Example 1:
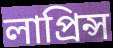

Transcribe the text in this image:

লাপ্রিন্স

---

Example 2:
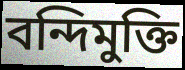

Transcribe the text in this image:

বন্দিমুক্তি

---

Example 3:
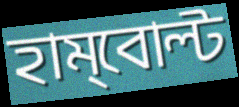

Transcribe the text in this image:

হাম্‌বোল্ট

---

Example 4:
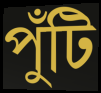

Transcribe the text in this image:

পুঁটি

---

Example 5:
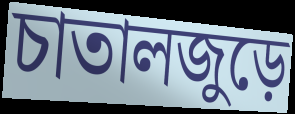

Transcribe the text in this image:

চাতালজুড়ে